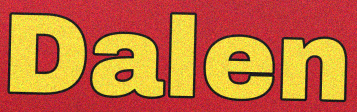
Dalen